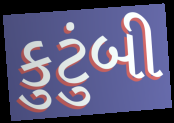
કુટુંબી